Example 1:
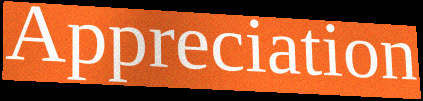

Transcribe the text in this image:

Appreciation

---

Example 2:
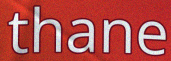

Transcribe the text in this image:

thane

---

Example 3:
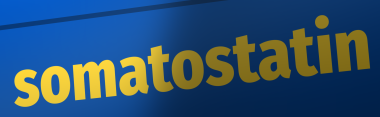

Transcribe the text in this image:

somatostatin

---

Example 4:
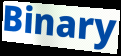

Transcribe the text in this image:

Binary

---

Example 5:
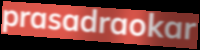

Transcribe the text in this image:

prasadraokar